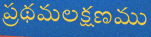
ప్రథమలక్షణము